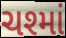
ચશ્માં